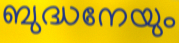
ബുദ്ധനേയും